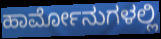
ಹಾರ್ಮೋನುಗಳಲ್ಲಿ